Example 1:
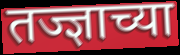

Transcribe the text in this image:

तज्ज्ञाच्या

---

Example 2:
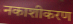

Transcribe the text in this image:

नकाशीकरण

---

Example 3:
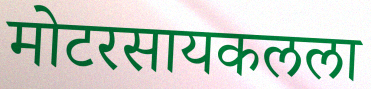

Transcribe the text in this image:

मोटरसायकलला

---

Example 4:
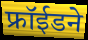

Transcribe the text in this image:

फ्रॉईडने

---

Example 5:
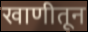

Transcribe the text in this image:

खाणीतून